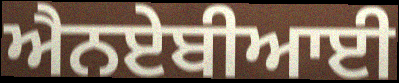
ਐਨਏਬੀਆਈ